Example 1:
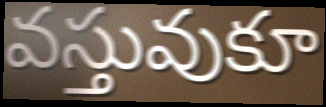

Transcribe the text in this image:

వస్తువుకూ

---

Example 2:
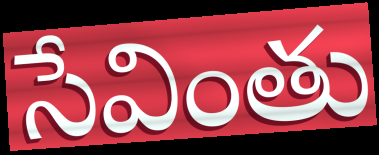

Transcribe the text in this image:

సేవింతు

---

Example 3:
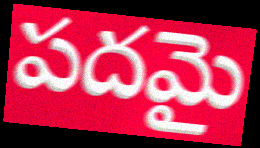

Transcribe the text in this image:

పదమై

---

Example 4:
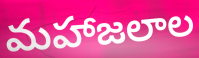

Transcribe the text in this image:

మహాజలాల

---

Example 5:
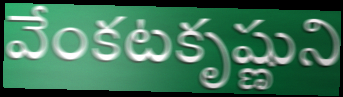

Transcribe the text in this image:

వేంకటకృష్ణుని